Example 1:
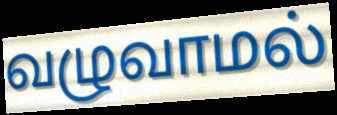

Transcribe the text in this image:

வழுவாமல்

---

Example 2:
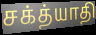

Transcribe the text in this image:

சக்த்யாதி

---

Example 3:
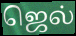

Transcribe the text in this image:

ஜெல்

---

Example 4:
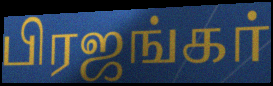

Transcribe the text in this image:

பிரஜங்கர்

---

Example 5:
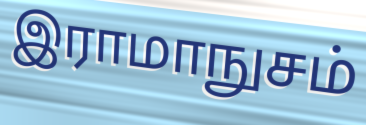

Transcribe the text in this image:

இராமாநுசம்